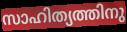
സാഹിത്യത്തിനു